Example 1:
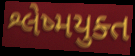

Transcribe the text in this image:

શ્લેષ્મયુક્ત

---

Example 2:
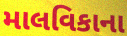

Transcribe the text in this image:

માલવિકાના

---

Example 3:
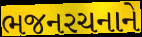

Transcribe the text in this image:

ભજનરચનાને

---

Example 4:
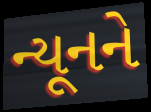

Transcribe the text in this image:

ન્યૂનને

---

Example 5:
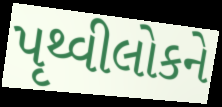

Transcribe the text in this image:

પૃથ્વીલોકને